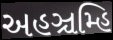
અહઞ્ચમ્હિ